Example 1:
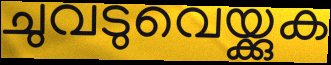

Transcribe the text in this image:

ചുവടുവെയ്ക്കുക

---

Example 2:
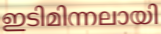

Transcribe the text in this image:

ഇടിമിന്നലായി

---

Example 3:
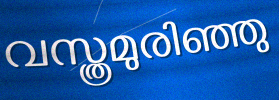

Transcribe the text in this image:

വസ്ത്രമുരിഞ്ഞു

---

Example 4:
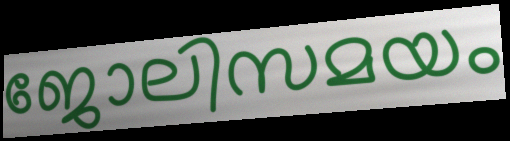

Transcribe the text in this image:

ജോലിസമയം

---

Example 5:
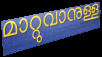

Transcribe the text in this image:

മാറ്റുവാനുള്ള